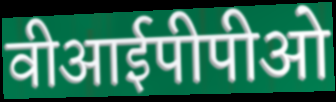
वीआईपीपीओ